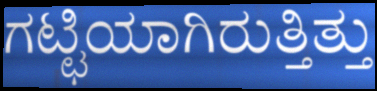
ಗಟ್ಟಿಯಾಗಿರುತ್ತಿತ್ತು